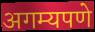
अगम्यपणे